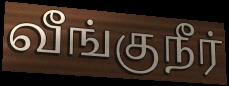
வீங்குநீர்